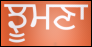
ਝੂਮਣਾ